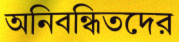
অনিবন্ধিতদের